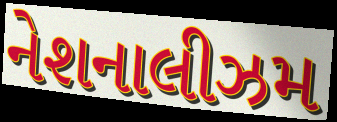
નેશનાલીઝમ